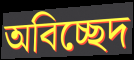
অবিচ্ছেদ